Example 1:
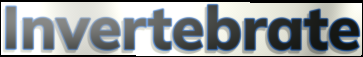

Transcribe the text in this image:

Invertebrate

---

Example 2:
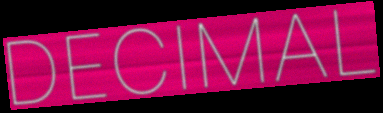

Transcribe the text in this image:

DECIMAL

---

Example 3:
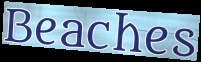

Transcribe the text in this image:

Beaches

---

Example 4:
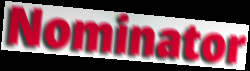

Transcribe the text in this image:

Nominator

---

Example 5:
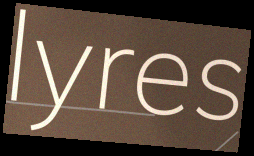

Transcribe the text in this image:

lyres